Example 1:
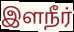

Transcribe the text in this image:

இளநீர்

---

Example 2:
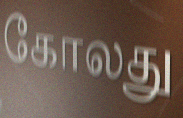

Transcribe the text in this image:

கோலது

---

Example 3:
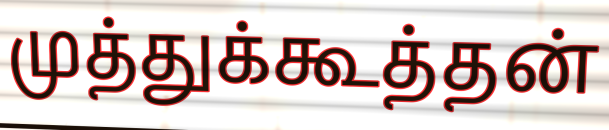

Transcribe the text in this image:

முத்துக்கூத்தன்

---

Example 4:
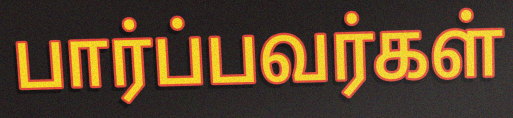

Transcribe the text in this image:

பார்ப்பவர்கள்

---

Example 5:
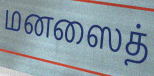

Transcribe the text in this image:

மனஸைத்